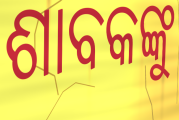
ଶାବକଙ୍କୁ